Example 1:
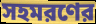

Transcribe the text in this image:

সহমরণের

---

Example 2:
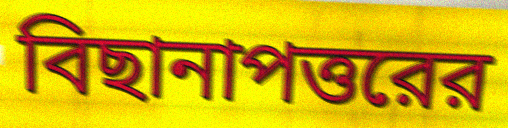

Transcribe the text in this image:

বিছানাপত্তরের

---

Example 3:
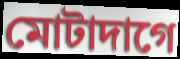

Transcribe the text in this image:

মোটাদাগে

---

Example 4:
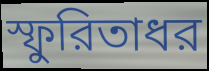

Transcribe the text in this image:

স্ফুরিতাধর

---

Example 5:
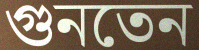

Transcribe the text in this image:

গুনতেন